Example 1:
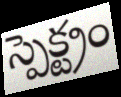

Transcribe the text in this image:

స్పెక్ట్రం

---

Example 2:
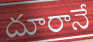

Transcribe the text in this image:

దూరానే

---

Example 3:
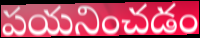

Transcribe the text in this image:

పయనించడం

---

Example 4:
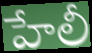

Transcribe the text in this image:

హేలీ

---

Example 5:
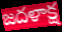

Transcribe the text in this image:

జదళాక్ష